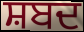
ਸ਼ਬਦ